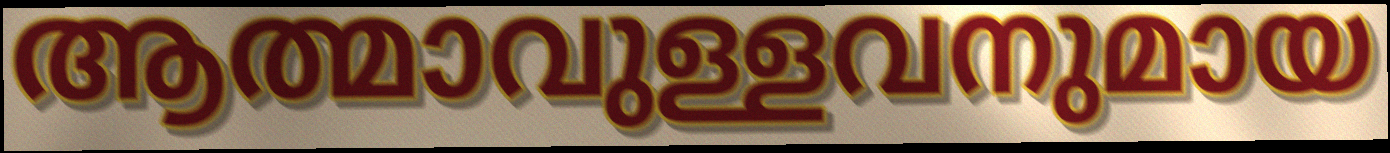
ആത്മാവുള്ളവനുമായ